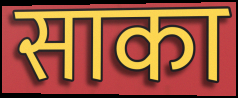
साका